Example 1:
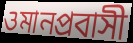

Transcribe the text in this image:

ওমানপ্রবাসী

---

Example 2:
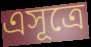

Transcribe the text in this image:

এসূত্রে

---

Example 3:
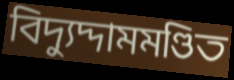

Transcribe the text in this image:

বিদ্যুদ্দামমণ্ডিত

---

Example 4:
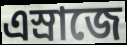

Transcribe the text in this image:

এস্রাজে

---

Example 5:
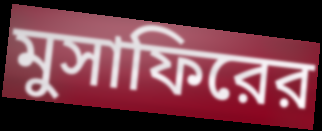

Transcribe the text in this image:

মুসাফিরের